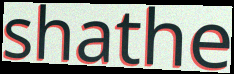
shathe